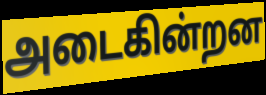
அடைகின்றன